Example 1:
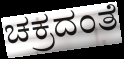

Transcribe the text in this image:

ಚಕ್ರದಂತೆ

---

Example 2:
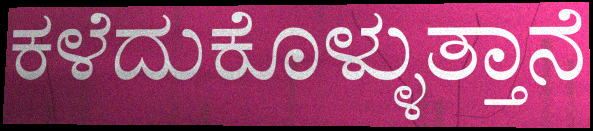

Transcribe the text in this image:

ಕಳೆದುಕೊಳ್ಳುತ್ತಾನೆ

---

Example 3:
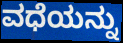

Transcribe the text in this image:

ವಧೆಯನ್ನು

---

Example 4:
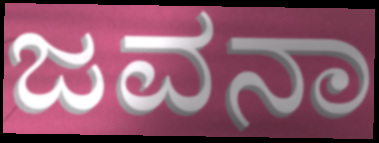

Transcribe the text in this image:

ಜವನಾ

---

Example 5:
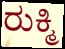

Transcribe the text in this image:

ರುಕ್ಮಿ